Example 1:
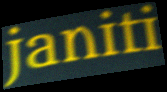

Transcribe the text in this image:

janiti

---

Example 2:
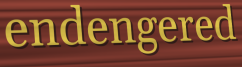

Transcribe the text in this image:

endengered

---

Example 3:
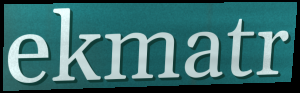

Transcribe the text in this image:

ekmatr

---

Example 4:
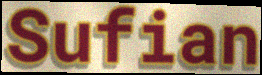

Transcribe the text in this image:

Sufian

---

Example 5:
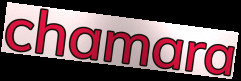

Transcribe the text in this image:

chamara